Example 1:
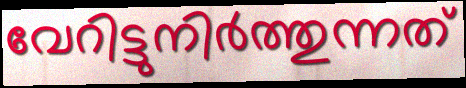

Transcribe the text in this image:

വേറിട്ടുനിർത്തുന്നത്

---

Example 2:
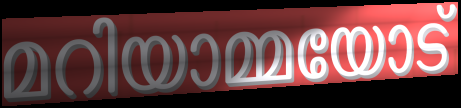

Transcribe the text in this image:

മറിയാമ്മയോട്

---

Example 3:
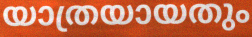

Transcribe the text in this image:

യാത്രയായതും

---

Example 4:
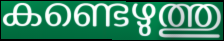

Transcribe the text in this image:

കണ്ടെഴുത്തു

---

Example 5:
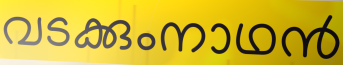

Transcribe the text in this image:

വടക്കുംനാഥൻ